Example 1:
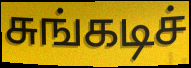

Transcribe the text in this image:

சுங்கடிச்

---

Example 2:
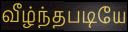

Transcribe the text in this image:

வீழ்ந்தபடியே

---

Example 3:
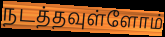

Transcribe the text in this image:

நடத்தவுள்ளோம்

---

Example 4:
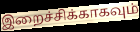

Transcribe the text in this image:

இறைச்சிக்காகவும்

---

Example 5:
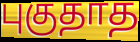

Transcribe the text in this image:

புகுதாத